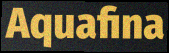
Aquafina